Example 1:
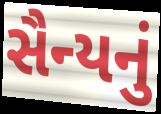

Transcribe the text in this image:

સૈન્યનું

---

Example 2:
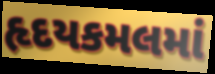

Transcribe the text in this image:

હૃદયકમલમાં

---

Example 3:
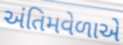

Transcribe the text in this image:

અંતિમવેળાએ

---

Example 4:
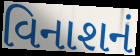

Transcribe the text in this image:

વિનાશનં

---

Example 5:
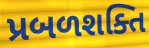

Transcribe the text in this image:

પ્રબળશક્તિ